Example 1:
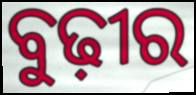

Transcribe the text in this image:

ବୁଢ଼ୀର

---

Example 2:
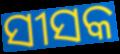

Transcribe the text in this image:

ସୀସକ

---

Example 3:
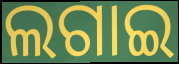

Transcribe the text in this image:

ଲଗାଇ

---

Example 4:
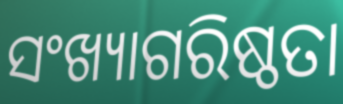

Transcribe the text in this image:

ସଂଖ୍ୟାଗରିଷ୍ଠତା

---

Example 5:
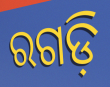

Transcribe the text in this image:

ରଗଡ଼ି